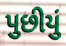
પુછીયું